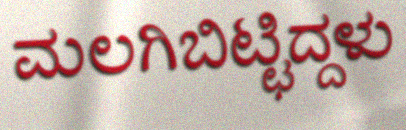
ಮಲಗಿಬಿಟ್ಟಿದ್ದಳು